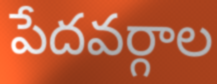
పేదవర్గాల